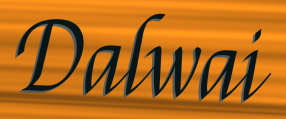
Dalwai